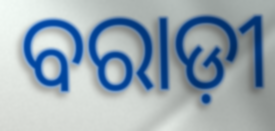
ବରାଡ଼ୀ